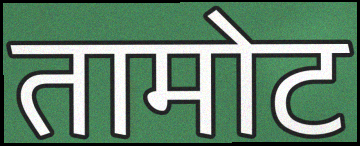
तामोट